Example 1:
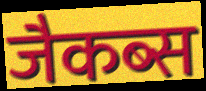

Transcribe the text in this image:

जैकब्स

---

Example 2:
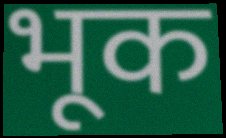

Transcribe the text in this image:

भूक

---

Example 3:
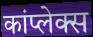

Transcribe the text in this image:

कांप्लेक्स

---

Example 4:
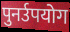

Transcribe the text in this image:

पुनर्उपयोग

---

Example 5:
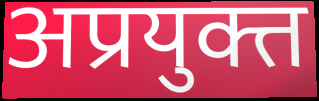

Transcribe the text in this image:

अप्रयुक्त